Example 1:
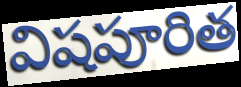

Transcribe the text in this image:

విషపూరిత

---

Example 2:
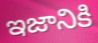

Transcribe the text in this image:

ఇజానికి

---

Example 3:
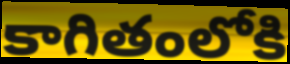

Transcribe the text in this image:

కాగితంలోకి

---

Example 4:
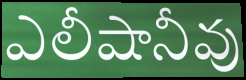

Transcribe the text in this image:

ఎలీషానీవు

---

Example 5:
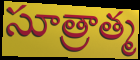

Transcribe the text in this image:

సూత్రాత్మ